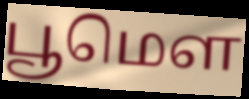
பூமௌ